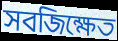
সবজিক্ষেত